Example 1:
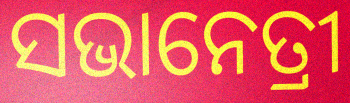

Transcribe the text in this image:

ସଭାନେତ୍ରୀ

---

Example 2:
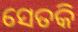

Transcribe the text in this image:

ସେତକି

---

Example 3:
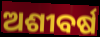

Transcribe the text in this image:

ଅଶୀବର୍ଷ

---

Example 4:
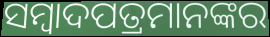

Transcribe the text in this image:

ସମ୍ୱାଦପତ୍ରମାନଙ୍କର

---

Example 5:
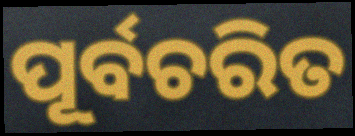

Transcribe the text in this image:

ପୂର୍ବଚରିତ